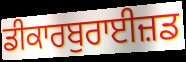
ਡੀਕਾਰਬੁਰਾਈਜ਼ਡ